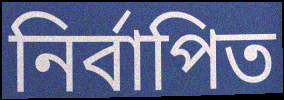
নির্বাপিত